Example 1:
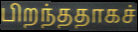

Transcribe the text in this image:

பிறந்ததாகச்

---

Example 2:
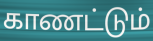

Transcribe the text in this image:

காணட்டும்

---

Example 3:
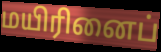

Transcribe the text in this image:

மயிரினைப்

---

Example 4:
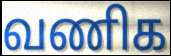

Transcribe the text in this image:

வணிக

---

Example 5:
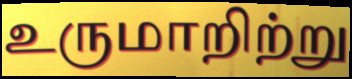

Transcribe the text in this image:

உருமாறிற்று